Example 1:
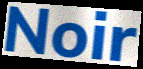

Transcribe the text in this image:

Noir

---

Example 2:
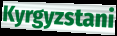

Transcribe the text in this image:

Kyrgyzstani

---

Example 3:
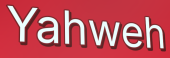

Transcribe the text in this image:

Yahweh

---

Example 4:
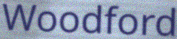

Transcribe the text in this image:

Woodford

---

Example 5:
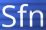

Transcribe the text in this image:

Sfn